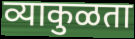
व्याकुळता